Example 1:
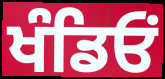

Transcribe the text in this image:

ਖੰਡਿਓਂ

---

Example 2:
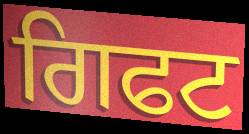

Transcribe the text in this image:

ਗਿਫਟ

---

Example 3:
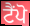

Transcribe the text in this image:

ਟੈਂਪੋ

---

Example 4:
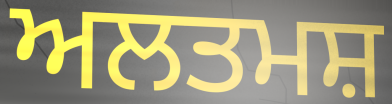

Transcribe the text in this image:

ਅਲਤਮਸ਼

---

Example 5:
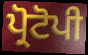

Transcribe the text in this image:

ਪ੍ਰੋਟੋਪੀ